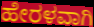
ಹೇರಳವಾಗಿ